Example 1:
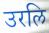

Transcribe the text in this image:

उरलि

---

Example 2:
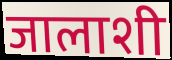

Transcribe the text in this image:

जालाशी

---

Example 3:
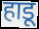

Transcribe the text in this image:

हाडू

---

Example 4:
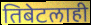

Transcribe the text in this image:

तिबेटलाही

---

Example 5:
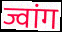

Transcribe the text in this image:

ज्वांग